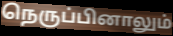
நெருப்பினாலும்